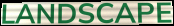
LANDSCAPE